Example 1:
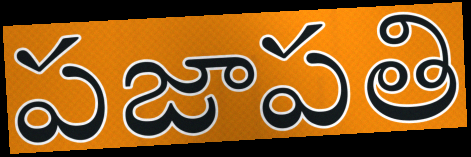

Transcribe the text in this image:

పజాపతి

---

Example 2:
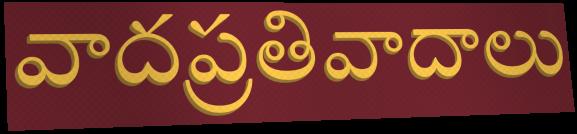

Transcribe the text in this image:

వాదప్రతివాదాలు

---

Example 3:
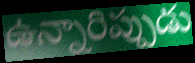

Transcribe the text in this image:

ఉన్నారిప్పుడు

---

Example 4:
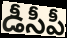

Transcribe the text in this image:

డీసీపీ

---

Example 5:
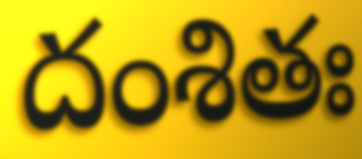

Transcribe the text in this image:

దంశితః